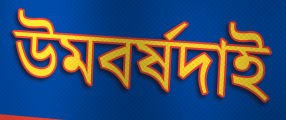
উমবৰ্ষদাই